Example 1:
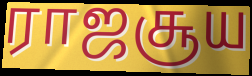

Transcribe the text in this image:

ராஜசூய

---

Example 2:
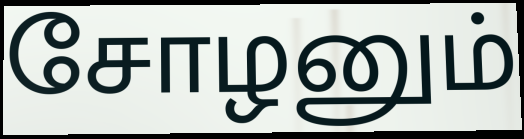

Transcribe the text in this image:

சோழனும்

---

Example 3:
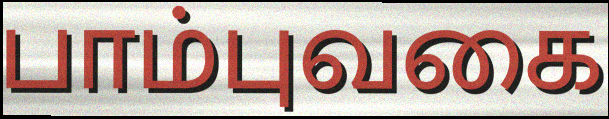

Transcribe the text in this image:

பாம்புவகை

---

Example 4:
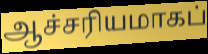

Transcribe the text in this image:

ஆச்சரியமாகப்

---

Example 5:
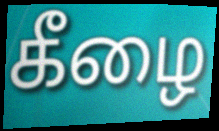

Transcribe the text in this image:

கீழை